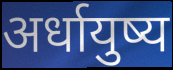
अर्धायुष्य